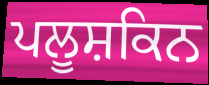
ਪਲੂਸ਼ਕਿਨ